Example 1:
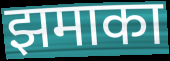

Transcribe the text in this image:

झमाका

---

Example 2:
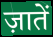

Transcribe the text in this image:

ज़ातें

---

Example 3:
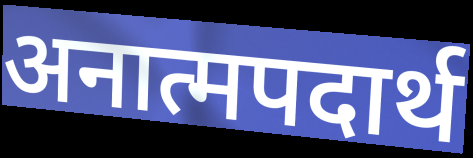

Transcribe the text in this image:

अनात्मपदार्थ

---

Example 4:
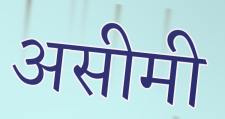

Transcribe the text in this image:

असीमी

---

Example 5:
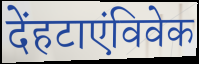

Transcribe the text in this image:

देंहटाएंविवेक